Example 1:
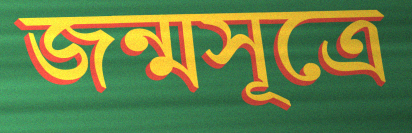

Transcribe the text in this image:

জন্মসূত্ৰে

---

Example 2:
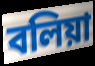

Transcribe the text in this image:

বলিয়া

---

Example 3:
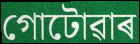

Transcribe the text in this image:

গোটোৱাৰ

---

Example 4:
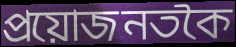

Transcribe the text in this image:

প্ৰয়োজনতকৈ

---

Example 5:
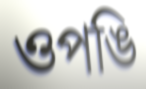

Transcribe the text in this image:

ওপঙি